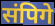
संपिगे